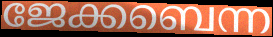
ജേക്കബെന്ന